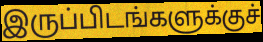
இருப்பிடங்களுக்குச்